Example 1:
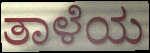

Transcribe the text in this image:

ತಾಳೆಯ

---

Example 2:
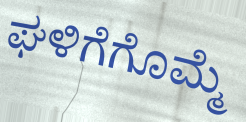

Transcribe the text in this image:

ಘಳಿಗೆಗೊಮ್ಮೆ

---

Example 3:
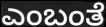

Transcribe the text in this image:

ಎಂಬಂತೆ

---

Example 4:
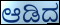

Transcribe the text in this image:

ಆಡಿದ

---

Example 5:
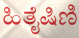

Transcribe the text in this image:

ಹಿತೈಷಿಣಿ